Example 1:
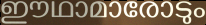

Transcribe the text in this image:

ഈഥാമാരോടും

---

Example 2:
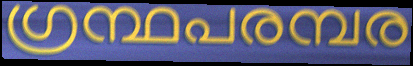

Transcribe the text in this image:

ഗ്രന്ഥപരമ്പര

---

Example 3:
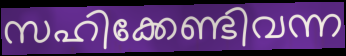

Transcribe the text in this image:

സഹിക്കേണ്ടിവന്ന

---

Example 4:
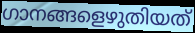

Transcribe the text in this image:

ഗാനങ്ങളെഴുതിയത്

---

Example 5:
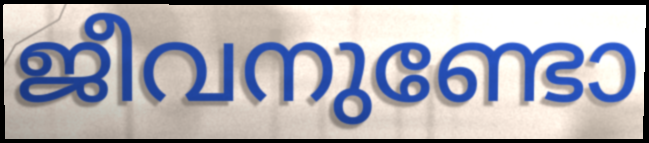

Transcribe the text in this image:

ജീവനുണ്ടോ